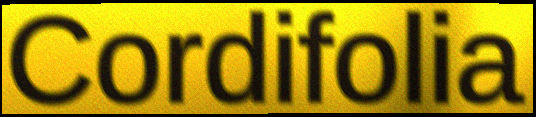
Cordifolia